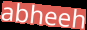
abheeh